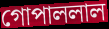
গোপাললাল